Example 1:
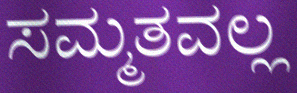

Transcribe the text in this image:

ಸಮ್ಮತವಲ್ಲ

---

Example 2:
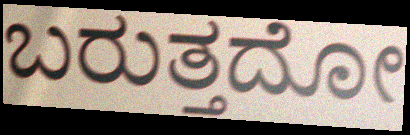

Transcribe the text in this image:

ಬರುತ್ತದೋ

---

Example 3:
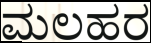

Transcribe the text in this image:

ಮಲಹರ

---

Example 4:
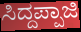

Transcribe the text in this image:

ಸಿದ್ದಪ್ಪಾಜಿ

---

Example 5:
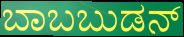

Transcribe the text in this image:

ಬಾಬಬುಡನ್